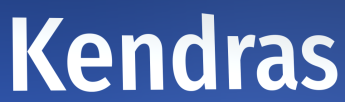
Kendras